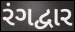
રંગદ્વાર